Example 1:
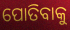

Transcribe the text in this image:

ପୋତିବାକୁ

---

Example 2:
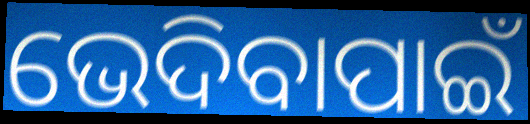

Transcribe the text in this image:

ଭେଦିବାପାଇଁ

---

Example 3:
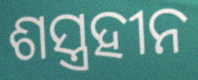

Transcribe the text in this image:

ଶସ୍ତ୍ରହୀନ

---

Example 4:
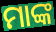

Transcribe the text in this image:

ମାଙ୍କ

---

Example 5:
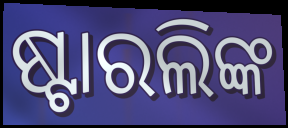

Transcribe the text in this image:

ଷ୍ଟାରଲିଙ୍କ